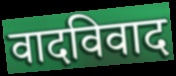
वादविवाद